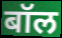
बॉल